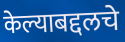
केल्याबद्दलचे